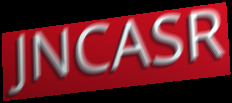
JNCASR